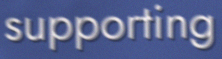
supporting